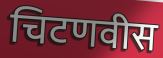
चिटणवीस